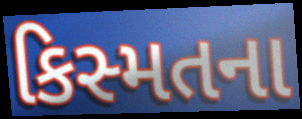
કિસ્મતના